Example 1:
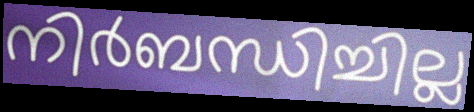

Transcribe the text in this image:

നിർബന്ധിച്ചില്ല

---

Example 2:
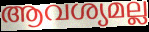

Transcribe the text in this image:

ആവശ്യമല്ല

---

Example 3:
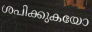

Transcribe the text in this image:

ശപിക്കുകയോ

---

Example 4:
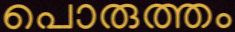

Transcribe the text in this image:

പൊരുത്തം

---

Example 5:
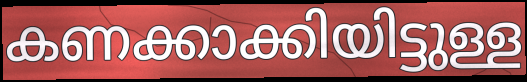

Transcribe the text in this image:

കണക്കാക്കിയിട്ടുള്ള